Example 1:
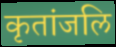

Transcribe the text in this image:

कृतांजलि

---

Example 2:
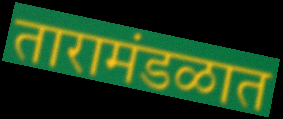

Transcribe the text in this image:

तारामंडळात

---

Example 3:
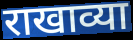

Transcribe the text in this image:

राखाव्या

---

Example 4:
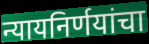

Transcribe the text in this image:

न्यायनिर्णयांचा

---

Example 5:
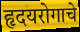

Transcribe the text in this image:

हृदयरोगाचे